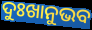
ଦୁଃଖାନୁଭବ